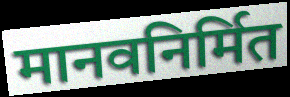
मानवनिर्मित